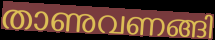
താണുവണങ്ങി